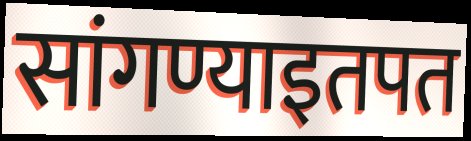
सांगण्याइतपत